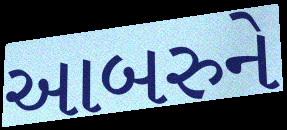
આબરુને